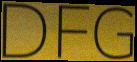
DFG